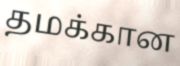
தமக்கான